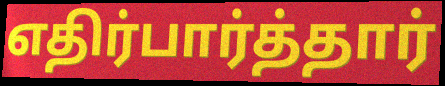
எதிர்பார்த்தார்